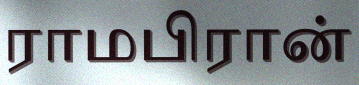
ராமபிரான்